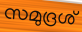
സമുദ്രശ്